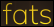
fats